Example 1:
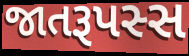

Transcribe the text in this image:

જાતરૂપસ્સ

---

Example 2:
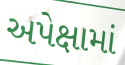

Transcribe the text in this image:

અપેક્ષામાં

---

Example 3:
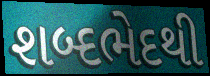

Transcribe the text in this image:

શબ્દભેદથી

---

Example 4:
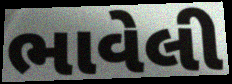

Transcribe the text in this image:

ભાવેલી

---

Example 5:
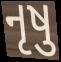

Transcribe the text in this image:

નૃષુ